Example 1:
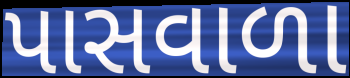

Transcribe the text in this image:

પાસવાળા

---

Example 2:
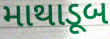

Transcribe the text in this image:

માથાડૂબ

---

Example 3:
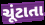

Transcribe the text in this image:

ચૂંટાતા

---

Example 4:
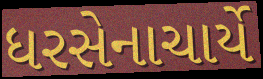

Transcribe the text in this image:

ધરસેનાચાર્યે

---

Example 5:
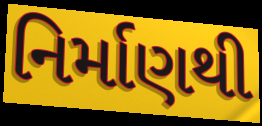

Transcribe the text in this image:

નિર્માણથી